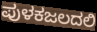
ಪುಳಕಜಲದಲಿ